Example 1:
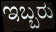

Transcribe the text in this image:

ಇಬ್ಬರು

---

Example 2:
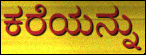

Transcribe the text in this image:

ಕರೆಯನ್ನು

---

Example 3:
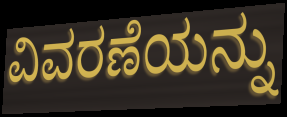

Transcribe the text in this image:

ವಿವರಣೆಯನ್ನು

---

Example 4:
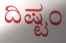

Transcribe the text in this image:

ದಿಷ್ಟಂ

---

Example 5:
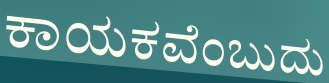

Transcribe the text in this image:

ಕಾಯಕವೆಂಬುದು